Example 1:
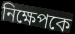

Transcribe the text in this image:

নিক্ষেপকে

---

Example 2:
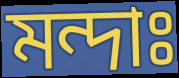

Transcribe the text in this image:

মন্দাঃ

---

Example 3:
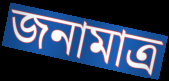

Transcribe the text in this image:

জনামাত্র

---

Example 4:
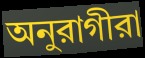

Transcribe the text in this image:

অনুরাগীরা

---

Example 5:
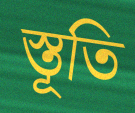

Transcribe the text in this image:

স্তূতি